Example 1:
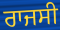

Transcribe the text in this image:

ਰਾਜਸੀ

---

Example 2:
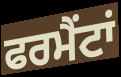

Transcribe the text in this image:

ਫਰਮੈਂਟਾਂ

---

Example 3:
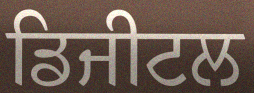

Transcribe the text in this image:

ਡਿਜੀਟਲ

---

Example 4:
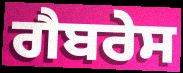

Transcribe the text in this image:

ਗੈਬਰੇਸ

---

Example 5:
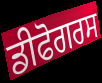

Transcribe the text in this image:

ਡੀਫੋਗਰਸ